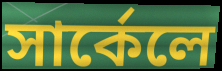
সার্কেলে